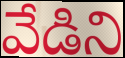
వేడిని